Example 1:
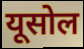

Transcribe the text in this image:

यूसोल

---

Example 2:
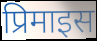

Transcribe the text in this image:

प्रिमाइस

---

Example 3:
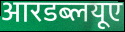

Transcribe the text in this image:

आरडब्लयूए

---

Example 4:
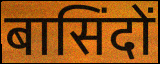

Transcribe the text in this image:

बासिंदों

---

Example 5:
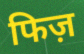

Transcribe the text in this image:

फिज़